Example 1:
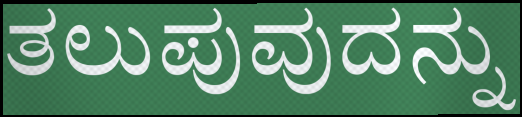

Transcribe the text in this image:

ತಲುಪುವುದನ್ನು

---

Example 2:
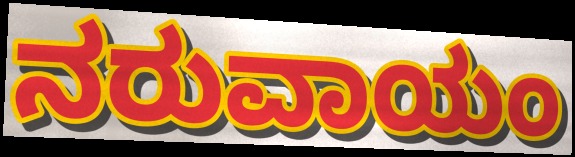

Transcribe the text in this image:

ನರುವಾಯಂ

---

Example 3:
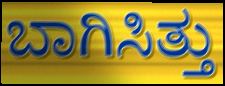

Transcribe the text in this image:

ಬಾಗಿಸಿತ್ತು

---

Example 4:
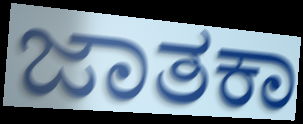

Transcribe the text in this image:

ಜಾತಕಾ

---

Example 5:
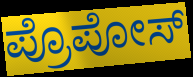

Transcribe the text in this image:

ಪ್ರೊಪೋಸ್